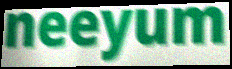
neeyum